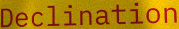
Declination